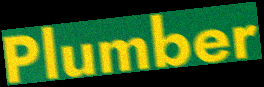
Plumber